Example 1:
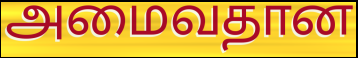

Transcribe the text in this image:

அமைவதான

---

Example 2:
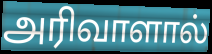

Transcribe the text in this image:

அரிவாளால்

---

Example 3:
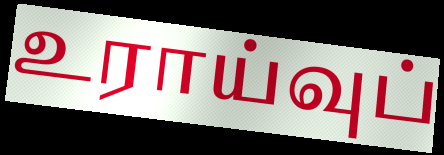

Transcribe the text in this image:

உராய்வுப்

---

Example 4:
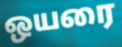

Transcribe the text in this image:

ஒயரை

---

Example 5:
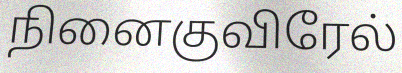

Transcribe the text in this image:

நினைகுவிரேல்